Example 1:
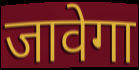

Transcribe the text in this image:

जावेगा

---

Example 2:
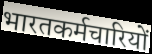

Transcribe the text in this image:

भारतकर्मचारियों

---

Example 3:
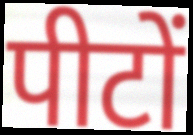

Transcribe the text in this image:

पीटों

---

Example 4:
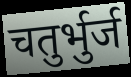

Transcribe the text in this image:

चतुर्भुर्ज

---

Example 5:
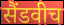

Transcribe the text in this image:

सैंडवीच